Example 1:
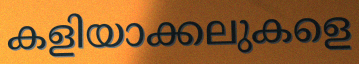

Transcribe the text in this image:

കളിയാക്കലുകളെ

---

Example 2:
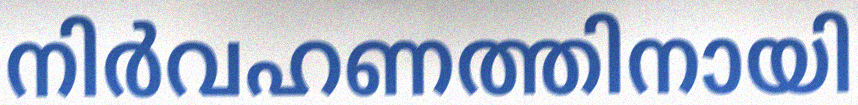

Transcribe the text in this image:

നിർവഹണത്തിനായി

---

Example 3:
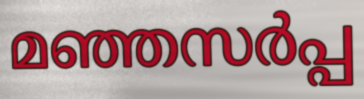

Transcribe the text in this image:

മഞ്ഞസർപ്പ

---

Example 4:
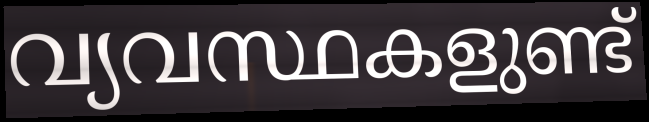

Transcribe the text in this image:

വ്യവസ്ഥകളുണ്ട്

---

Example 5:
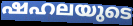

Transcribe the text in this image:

ഷഹലയുടെ